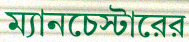
ম্যানচেস্টারের